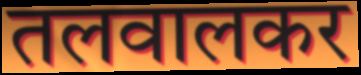
तलवालकर